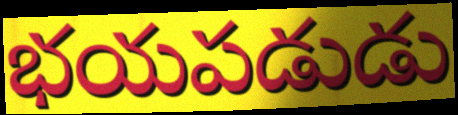
భయపడుడు